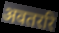
अवतररि